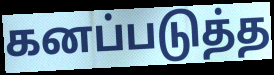
கனப்படுத்த